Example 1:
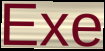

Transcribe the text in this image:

Exe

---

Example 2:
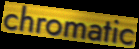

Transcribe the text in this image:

chromatic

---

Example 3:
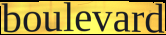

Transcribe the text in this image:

boulevard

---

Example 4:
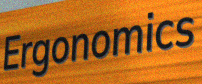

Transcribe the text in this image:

Ergonomics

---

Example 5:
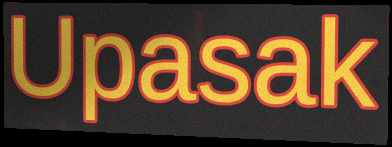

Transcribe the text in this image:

Upasak